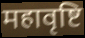
महावृष्टि